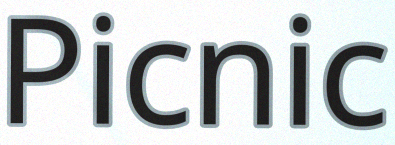
Picnic